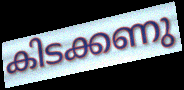
കിടക്കണു